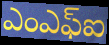
ఎంఎఫ్ఐ